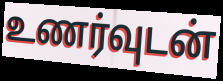
உணர்வுடன்